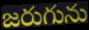
జరుగును